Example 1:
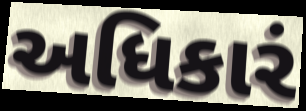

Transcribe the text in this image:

અધિકારં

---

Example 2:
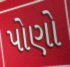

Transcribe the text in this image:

પોણો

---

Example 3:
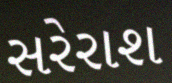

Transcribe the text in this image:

સરેરાશ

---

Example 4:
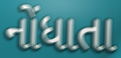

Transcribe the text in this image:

નોંધાતા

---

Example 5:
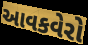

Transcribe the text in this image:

આવકવેરો